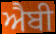
ਐਬੀ